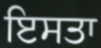
ਇਸਤਾ